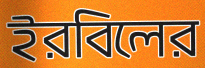
ইরবিলের